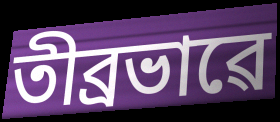
তীব্ৰভাৱে